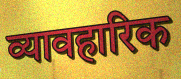
व्‍यावहारिक